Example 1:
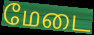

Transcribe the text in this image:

மேடை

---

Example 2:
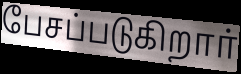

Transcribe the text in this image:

பேசப்படுகிறார்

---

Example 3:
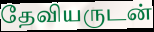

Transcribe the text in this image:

தேவியருடன்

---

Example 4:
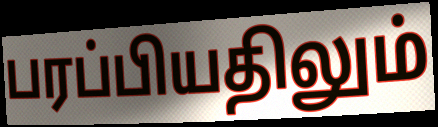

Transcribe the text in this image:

பரப்பியதிலும்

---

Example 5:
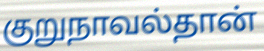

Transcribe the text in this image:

குறுநாவல்தான்